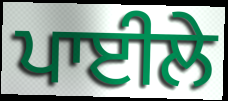
ਪਾਈਲੇ